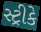
સ્ટ્રીકે